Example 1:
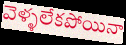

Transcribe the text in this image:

వెళ్ళలేకపోయినా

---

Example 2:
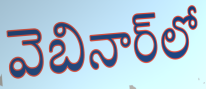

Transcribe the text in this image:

వెబినార్‌లో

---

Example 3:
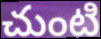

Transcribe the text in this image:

చుంటి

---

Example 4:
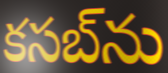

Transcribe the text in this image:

కసబ్‌ను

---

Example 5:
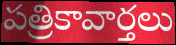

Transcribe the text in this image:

పత్రికావార్తలు